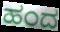
ಹಂದ